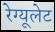
रेग्यूलेट